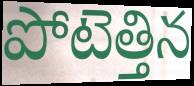
పోటెత్తిన